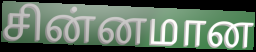
சின்னமான